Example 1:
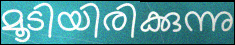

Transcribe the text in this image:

മൂടിയിരിക്കുന്നു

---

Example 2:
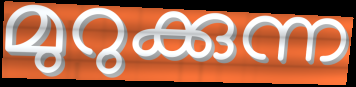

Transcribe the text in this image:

മുറുക്കുന്ന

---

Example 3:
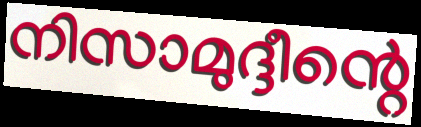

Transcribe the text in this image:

നിസാമുദ്ദീന്റെ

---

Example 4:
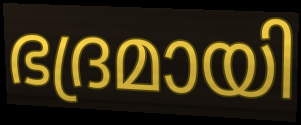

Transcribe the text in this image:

ഭദ്രമായി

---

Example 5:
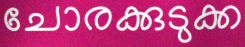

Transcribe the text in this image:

ചോരക്കുടുക്ക